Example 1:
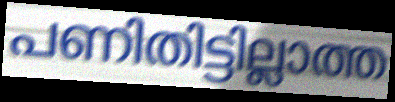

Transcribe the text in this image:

പണിതിട്ടില്ലാത്ത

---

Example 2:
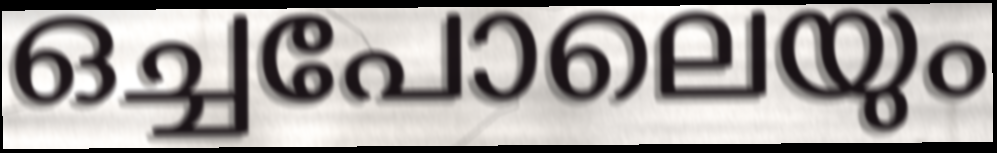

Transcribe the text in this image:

ഒച്ചപോലെയും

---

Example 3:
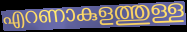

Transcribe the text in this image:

എറണാകുളത്തുള്ള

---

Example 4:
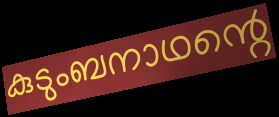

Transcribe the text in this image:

കുടുംബനാഥന്റെ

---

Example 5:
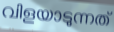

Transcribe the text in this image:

വിളയാടുന്നത്